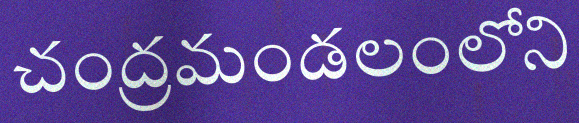
చంద్రమండలంలోని